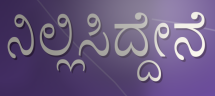
ನಿಲ್ಲಿಸಿದ್ದೇನೆ